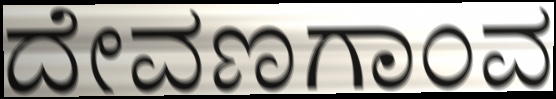
ದೇವಣಗಾಂವ